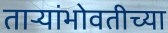
ताऱ्यांभोवतीच्या